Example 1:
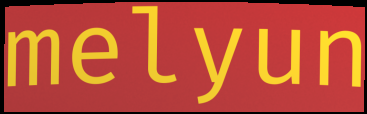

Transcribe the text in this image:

melyun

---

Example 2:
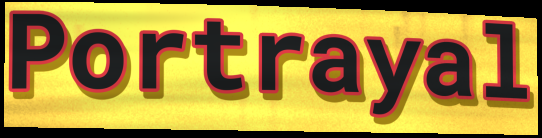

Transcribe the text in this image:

Portrayal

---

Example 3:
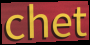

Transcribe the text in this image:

chet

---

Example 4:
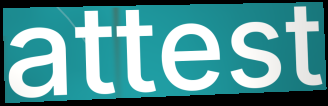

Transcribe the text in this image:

attest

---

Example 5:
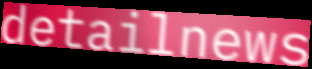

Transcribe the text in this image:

detailnews